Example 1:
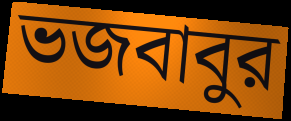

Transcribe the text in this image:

ভজবাবুর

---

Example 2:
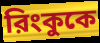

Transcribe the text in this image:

রিংকুকে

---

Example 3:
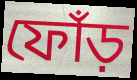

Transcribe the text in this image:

ফোঁড়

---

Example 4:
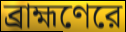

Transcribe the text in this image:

ব্রাহ্মণেরে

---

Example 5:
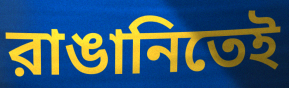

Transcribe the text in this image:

রাঙানিতেই